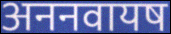
अननवायष